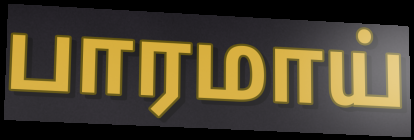
பாரமாய்